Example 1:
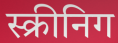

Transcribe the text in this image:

स्क्रीनिग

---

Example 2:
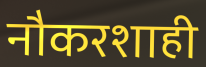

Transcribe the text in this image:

नौकरशाही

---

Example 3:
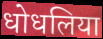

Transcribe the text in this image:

धोधलिया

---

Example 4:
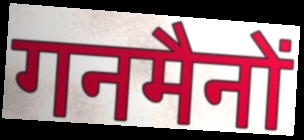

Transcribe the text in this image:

गनमैनों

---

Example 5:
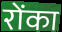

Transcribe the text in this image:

रोंका